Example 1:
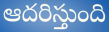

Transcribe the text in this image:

ఆదరిస్తుంది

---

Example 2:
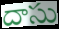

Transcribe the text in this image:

దాసు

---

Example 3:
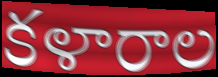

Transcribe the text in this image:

కళారాల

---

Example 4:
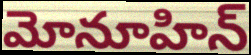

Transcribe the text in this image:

మోనూహిన్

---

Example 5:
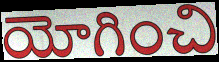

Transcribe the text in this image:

యోగించి